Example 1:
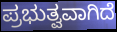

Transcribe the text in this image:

ಪ್ರಭುತ್ವವಾಗಿದೆ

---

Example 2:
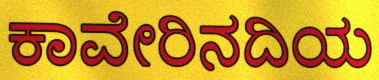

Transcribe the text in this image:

ಕಾವೇರಿನದಿಯ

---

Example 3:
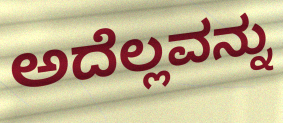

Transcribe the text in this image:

ಅದೆಲ್ಲವನ್ನು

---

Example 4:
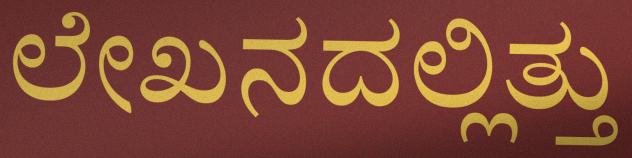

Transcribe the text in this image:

ಲೇಖನದಲ್ಲಿತ್ತು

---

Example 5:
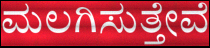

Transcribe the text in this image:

ಮಲಗಿಸುತ್ತೇವೆ